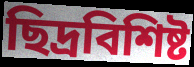
ছিদ্রবিশিষ্ট